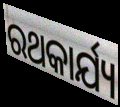
ରଥକାର୍ଯ୍ୟ